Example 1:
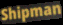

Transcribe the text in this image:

Shipman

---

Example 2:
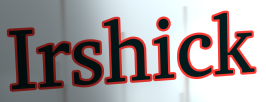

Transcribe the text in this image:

Irshick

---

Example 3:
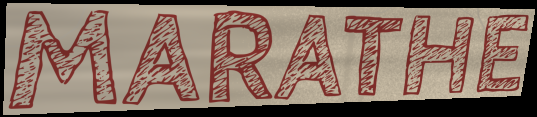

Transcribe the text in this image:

MARATHE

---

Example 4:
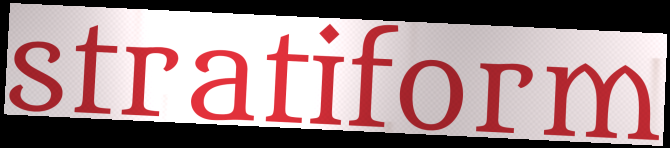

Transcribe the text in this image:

stratiform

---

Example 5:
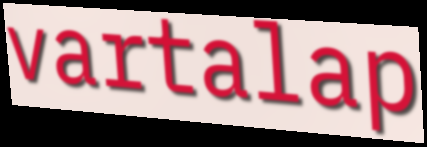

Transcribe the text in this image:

vartalap